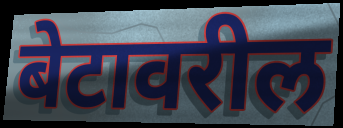
बेटावरील